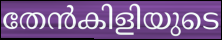
തേൻകിളിയുടെ